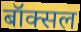
बॉक्सल